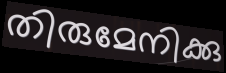
തിരുമേനിക്കു